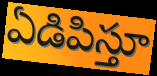
ఏడిపిస్తూ